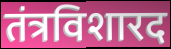
तंत्रविशारद